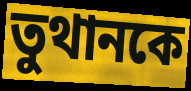
তুথানকে